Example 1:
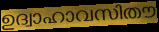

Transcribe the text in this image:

ഉദ്വാഹാവസിതൗ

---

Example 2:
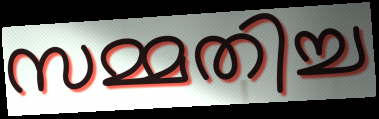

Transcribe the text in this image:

സമ്മതിച്ച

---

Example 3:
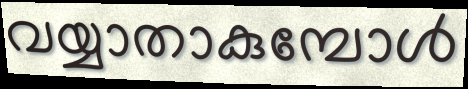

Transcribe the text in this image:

വയ്യാതാകുമ്പോൾ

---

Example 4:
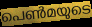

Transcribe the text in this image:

പെൺമയുടെ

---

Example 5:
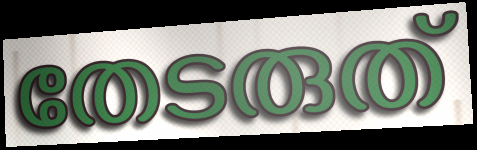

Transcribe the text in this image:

തേടരുത്